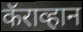
कॅराव्हान